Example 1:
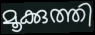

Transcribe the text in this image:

മൂക്കുത്തി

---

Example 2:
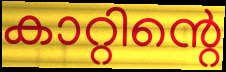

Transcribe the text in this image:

കാറ്റിന്റെ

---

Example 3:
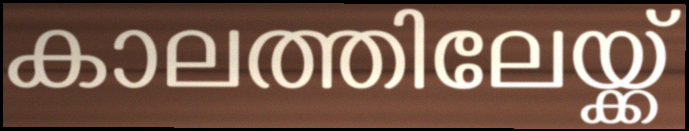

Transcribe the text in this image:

കാലത്തിലേയ്ക്ക്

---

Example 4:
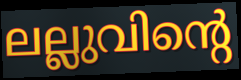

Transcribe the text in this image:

ലല്ലുവിന്റെ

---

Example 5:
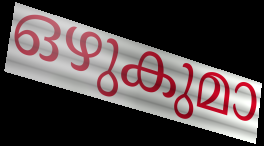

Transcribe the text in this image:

ഒഴുകുമാ